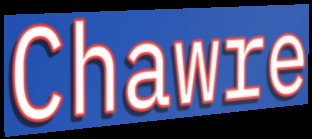
Chawre